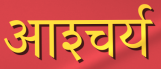
आश्‍चर्य